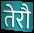
तेरौ